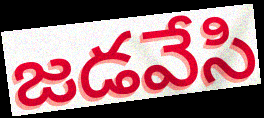
జడవేసి